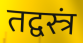
तद्वस्त्रं